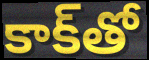
కాక్‌తో